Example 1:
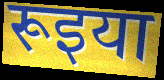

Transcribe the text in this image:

रूइया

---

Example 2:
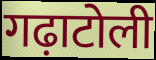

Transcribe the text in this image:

गढ़ाटोली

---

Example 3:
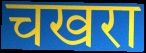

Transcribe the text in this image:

चखरा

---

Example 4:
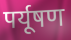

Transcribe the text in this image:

पर्यूषण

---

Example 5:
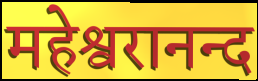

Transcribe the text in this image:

महेश्वरानन्द